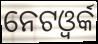
ନେଟଓ୍ବର୍କ